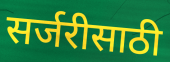
सर्जरीसाठी